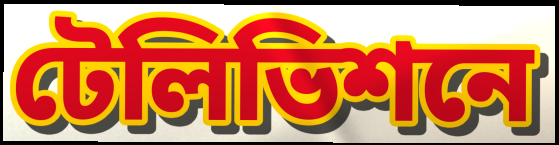
টেলিভিশনে